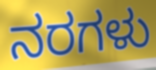
ನರಗಳು